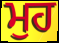
ਮੁਹ